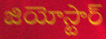
జియోస్టార్